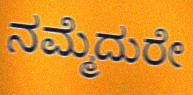
ನಮ್ಮೆದುರೇ